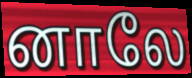
னாலே